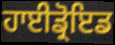
ਹਾਈਡ੍ਰੋਇਡ